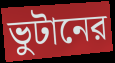
ভুটানের